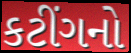
કટીંગનો